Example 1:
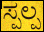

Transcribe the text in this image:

ಸ್ಪಲ್ಪ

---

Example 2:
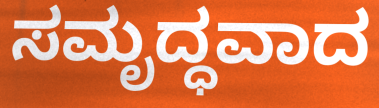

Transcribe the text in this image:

ಸಮೃದ್ಧವಾದ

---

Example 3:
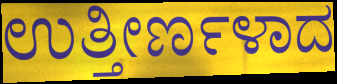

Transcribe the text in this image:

ಉತ್ತೀರ್ಣಳಾದ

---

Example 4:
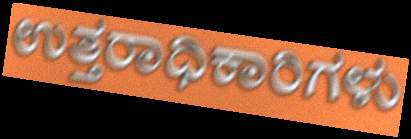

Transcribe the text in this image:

ಉತ್ತರಾಧಿಕಾರಿಗಳು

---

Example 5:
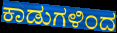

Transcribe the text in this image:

ಕಾಡುಗಳಿಂದ